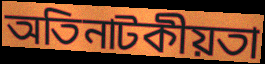
অতিনাটকীয়তা